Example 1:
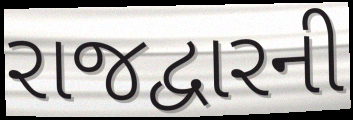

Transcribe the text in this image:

રાજદ્વારની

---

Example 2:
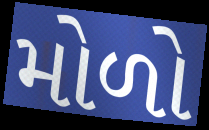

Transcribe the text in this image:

મોળો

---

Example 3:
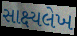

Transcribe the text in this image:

સાક્ષ્યલેખ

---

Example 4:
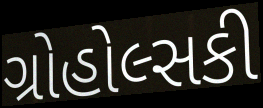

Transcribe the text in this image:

ગ્રોહોલ્સકી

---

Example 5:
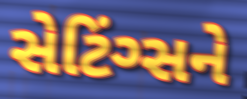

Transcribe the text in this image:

સેટિંગ્સને